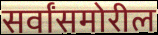
सर्वांसमोरील